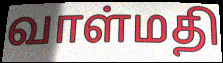
வாள்மதி